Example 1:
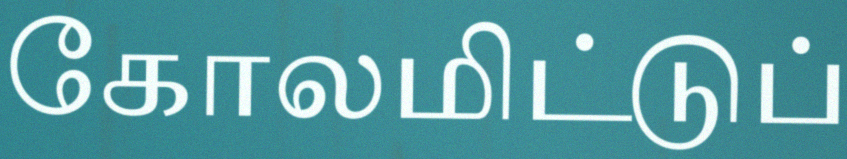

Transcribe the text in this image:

கோலமிட்டுப்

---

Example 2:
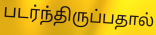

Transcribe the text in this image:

படர்ந்திருப்பதால்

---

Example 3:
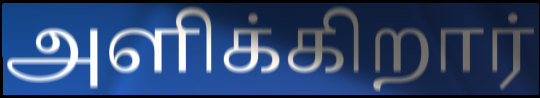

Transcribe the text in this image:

அளிக்கிறார்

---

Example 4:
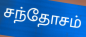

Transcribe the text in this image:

சந்தோசம்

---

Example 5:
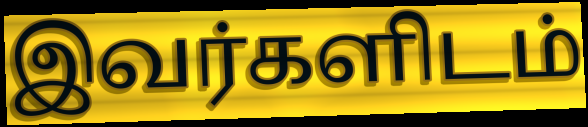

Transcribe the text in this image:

இவர்களிடம்